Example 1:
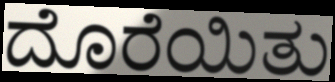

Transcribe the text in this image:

ದೊರೆಯಿತು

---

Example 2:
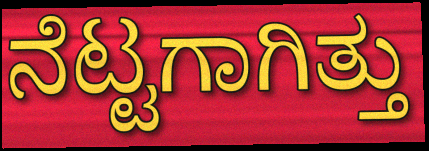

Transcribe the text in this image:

ನೆಟ್ಟಗಾಗಿತ್ತು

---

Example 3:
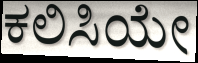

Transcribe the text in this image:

ಕಲಿಸಿಯೇ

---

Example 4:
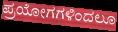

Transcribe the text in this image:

ಪ್ರಯೋಗಗಳಿಂದಲೂ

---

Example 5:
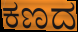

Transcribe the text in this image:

ಕಣದ